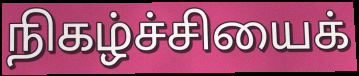
நிகழ்ச்சியைக்